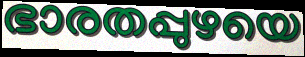
ഭാരതപ്പുഴയെ